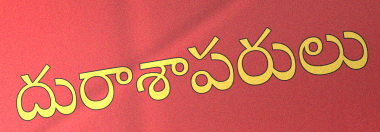
దురాశాపరులు